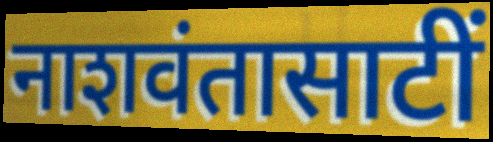
नाशवंतासाटीं